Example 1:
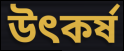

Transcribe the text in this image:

উৎকর্ষ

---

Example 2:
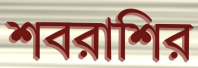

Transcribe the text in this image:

শবরাশির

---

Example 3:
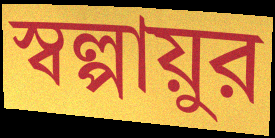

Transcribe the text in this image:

স্বল্পায়ুর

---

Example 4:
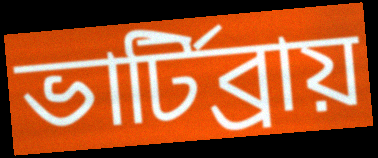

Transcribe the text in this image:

ভার্টিব্রায়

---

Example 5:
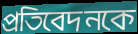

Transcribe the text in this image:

প্রতিবেদনকে